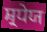
ਸ਼੍ਰਧੇਯ